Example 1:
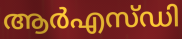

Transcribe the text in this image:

ആർഎസ്ഡി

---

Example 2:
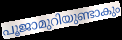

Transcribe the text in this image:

പൂജാമുറിയുണ്ടാകും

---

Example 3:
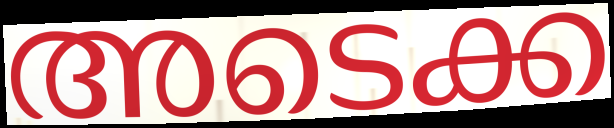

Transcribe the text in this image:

അടെക്ക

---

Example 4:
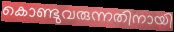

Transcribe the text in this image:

കൊണ്ടുവരുന്നതിനായി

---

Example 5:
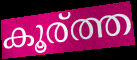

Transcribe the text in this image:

കൂര്ത്ത